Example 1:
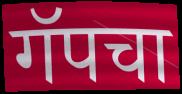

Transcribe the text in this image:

गॅपचा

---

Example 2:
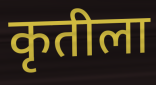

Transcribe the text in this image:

कृतीला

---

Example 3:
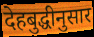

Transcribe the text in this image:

देहबुद्धीनुसार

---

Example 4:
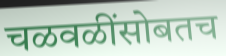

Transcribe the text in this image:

चळवळींसोबतच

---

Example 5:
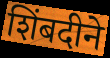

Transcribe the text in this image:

शिंबदीने